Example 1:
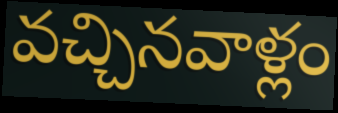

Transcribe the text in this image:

వచ్చినవాళ్లం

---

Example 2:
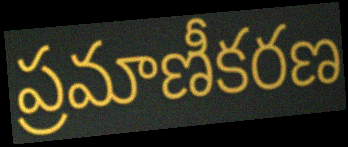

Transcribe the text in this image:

ప్రమాణీకరణ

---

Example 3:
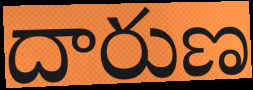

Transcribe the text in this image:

దారుణ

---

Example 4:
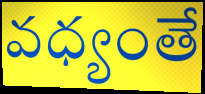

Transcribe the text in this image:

వధ్యంతే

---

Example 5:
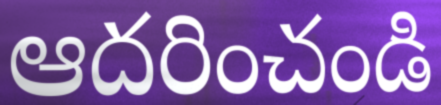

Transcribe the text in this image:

ఆదరించండి